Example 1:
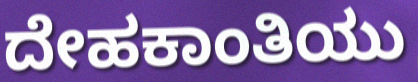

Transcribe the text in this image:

ದೇಹಕಾಂತಿಯು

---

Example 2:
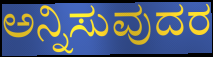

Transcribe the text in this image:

ಅನ್ನಿಸುವುದರ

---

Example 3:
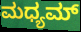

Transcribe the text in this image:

ಮಧ್ಯಮ್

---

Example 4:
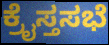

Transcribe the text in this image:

ಕ್ರೈಸ್ತಸಭೆ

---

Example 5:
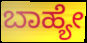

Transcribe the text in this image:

ಬಾಹ್ಯೇ